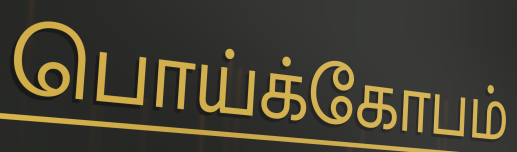
பொய்க்கோபம்